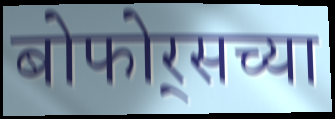
बोफोर्सच्या